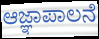
ಆಜ್ಞಾಪಾಲನೆ